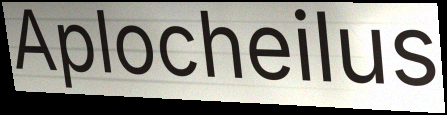
Aplocheilus